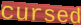
cursed